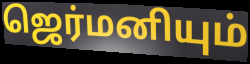
ஜெர்மனியும்